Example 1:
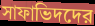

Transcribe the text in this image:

সাফাভিদদের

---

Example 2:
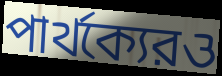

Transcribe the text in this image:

পার্থক্যেরও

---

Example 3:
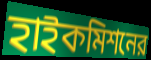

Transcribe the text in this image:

হাইকমিশনের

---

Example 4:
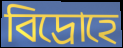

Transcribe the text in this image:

বিদ্রোহে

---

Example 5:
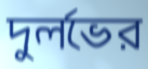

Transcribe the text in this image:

দুর্লভের